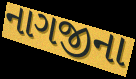
નાગજીના